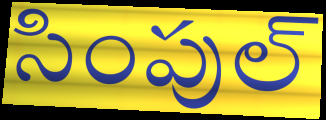
సింపుల్